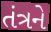
તંત્રને